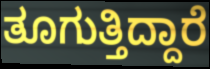
ತೂಗುತ್ತಿದ್ದಾರೆ